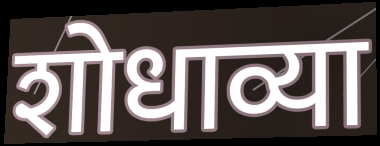
शोधाव्या